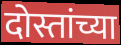
दोस्तांच्या